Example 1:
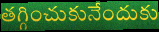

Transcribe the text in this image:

తగ్గించుకునేందుకు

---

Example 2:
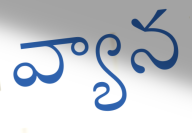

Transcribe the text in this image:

వ్యాన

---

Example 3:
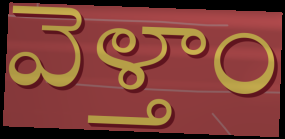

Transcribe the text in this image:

వెళ్తాం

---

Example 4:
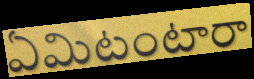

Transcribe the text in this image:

ఏమిటంటారా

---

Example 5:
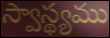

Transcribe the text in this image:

స్వాస్థ్యము